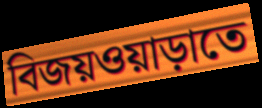
বিজয়ওয়াড়াতে